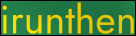
irunthen